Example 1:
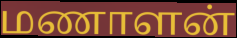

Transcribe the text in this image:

மணாளன்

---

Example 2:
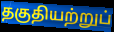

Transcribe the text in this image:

தகுதியற்றுப்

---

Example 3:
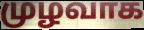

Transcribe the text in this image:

முழவாக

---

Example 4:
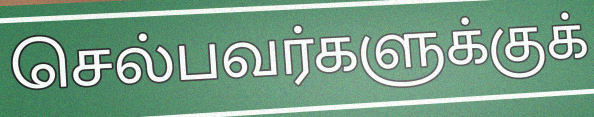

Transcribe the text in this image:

செல்பவர்களுக்குக்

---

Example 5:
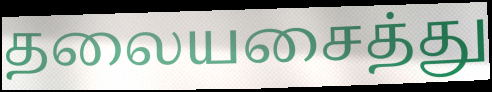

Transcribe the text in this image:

தலையசைத்து